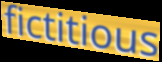
fictitious